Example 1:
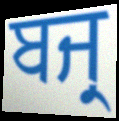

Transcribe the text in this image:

ਬਜ੍ਰ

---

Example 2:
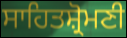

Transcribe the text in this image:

ਸਾਹਿਤਸ਼੍ਰੋਮਣੀ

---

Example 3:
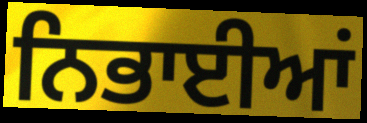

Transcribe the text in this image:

ਨਿਭਾਈਆਂ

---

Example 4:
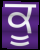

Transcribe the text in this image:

ਕੂ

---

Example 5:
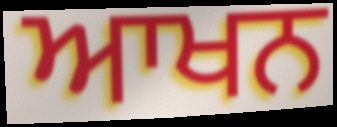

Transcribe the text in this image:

ਆਖਨ